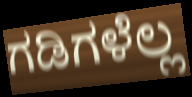
ಗಡಿಗಳೆಲ್ಲ